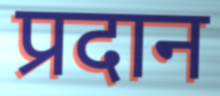
प्रदान